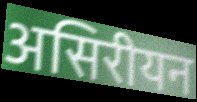
असिरीयन